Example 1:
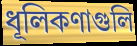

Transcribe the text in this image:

ধূলিকণাগুলি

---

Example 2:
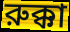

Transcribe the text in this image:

রুক্কা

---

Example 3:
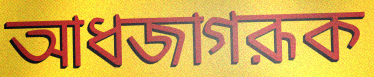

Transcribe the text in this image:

আধজাগরূক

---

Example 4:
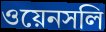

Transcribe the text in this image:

ওয়েনসলি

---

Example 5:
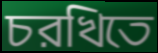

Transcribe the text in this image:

চরখিতে